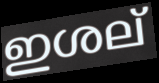
ഇശല്